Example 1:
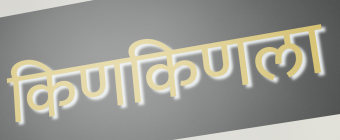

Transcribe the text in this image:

किणकिणला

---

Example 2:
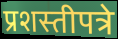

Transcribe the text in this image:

प्रशस्तीपत्रे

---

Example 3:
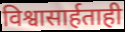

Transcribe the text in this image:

विश्वासार्हताही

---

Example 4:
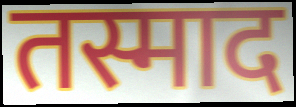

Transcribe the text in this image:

तस्माद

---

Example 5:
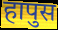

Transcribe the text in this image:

हापुस